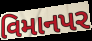
વિમાનપર